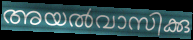
അയൽവാസിക്കു